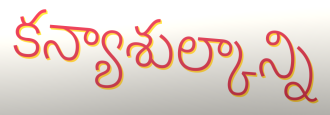
కన్యాశుల్కాన్ని